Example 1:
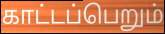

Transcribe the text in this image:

காட்டப்பெறும்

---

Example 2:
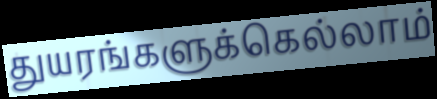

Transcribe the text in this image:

துயரங்களுக்கெல்லாம்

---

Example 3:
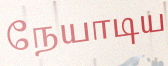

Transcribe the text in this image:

நேயாடிய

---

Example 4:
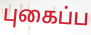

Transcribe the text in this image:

புகைப்ப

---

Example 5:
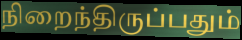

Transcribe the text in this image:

நிறைந்திருப்பதும்